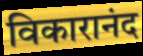
विकारानंद